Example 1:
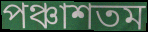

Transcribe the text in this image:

পঞ্চাশতম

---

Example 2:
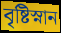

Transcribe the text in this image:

বৃষ্টিস্নান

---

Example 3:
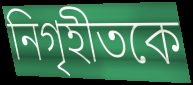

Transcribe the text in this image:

নিগৃহীতকে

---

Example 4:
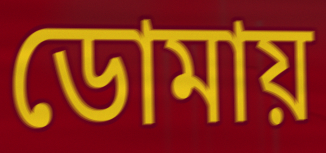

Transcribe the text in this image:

ডোমায়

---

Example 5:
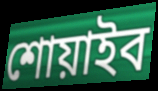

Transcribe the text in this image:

শোয়াইব